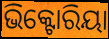
ଭିକ୍ଟୋରିୟା